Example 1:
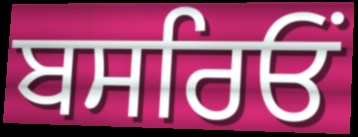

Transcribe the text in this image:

ਬਸਰਿਓਂ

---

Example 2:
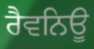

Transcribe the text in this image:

ਰੈਵਨਿਊ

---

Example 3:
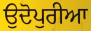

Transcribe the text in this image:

ਉਦੋਪੁਰੀਆ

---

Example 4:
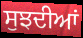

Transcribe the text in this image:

ਸੁਝਦੀਆਂ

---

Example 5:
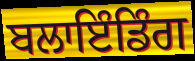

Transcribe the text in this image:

ਬਲਾਇੰਡਿੰਗ